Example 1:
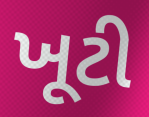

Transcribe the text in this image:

ખૂટી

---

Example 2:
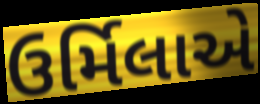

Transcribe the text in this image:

ઉર્મિલાએ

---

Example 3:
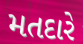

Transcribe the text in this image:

મતદારે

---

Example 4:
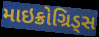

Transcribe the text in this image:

માઇક્રોગ્રિડ્સ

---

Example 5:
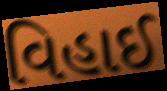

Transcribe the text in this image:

વિહાઈ